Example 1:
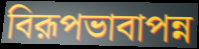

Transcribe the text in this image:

বিরূপভাবাপন্ন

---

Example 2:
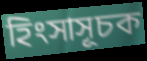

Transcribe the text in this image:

হিংসাসূচক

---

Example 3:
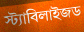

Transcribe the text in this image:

স্ট্যাবিলাইজড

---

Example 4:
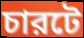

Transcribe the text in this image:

চারটে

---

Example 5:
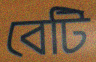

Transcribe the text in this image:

বেটি